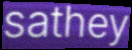
sathey